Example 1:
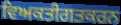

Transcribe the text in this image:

ਵਿਅਕਤੀਗਤਕਰਨ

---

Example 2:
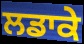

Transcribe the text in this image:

ਲਡਾਕੇ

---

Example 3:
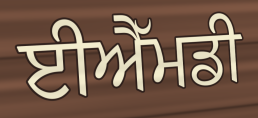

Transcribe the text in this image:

ਈਐੱਮਡੀ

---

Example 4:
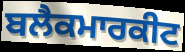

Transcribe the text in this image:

ਬਲੈਕਮਾਰਕੀਟ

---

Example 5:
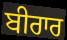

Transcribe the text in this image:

ਬੀਰਾਰ